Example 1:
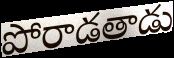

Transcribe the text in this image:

పోరాడతాడు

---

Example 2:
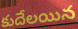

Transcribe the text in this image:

కుదేలయిన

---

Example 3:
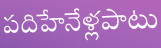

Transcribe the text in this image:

పదిహేనేళ్లపాటు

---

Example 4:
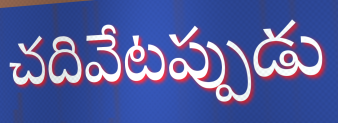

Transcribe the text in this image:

చదివేటప్పుడు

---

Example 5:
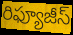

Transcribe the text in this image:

రిఫ్యూజీస్